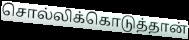
சொல்லிக்கொடுத்தான்